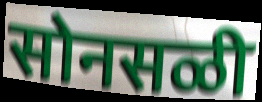
सोनसळी